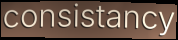
consistancy